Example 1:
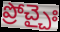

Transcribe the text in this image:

ప్రోచ్చైః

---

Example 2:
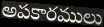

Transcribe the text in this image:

అపకారములు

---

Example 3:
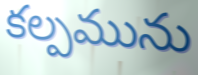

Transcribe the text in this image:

కల్పమును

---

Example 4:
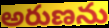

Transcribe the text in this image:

అరుణను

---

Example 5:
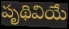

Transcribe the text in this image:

పృథివియే